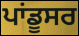
ਪਾਂਡੂਸਰ